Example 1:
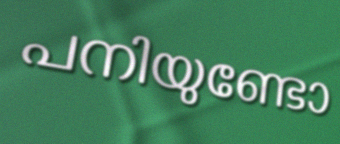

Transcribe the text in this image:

പനിയുണ്ടോ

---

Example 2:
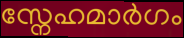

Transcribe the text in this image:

സ്നേഹമാർഗം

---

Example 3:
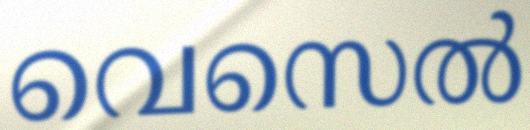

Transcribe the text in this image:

വെസെൽ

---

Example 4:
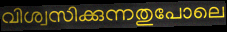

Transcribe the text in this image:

വിശ്വസിക്കുന്നതുപോലെ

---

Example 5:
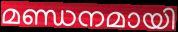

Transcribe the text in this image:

മണ്ഡനമായി